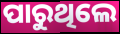
ପାରୁଥିଲେ